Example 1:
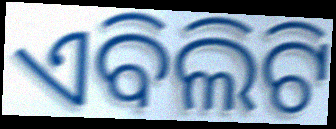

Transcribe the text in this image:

ଏବିଲିଟି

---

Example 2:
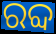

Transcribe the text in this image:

ରବ୍ଦ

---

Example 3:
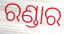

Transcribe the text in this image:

ରଣ୍ଡାର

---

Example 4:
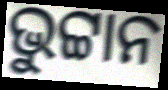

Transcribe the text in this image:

ଭୁଟ୍ଟାନ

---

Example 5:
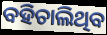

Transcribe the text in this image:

ବହିଚାଲିଥିବ